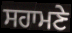
ਸਹਾਮਣੇ